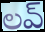
లవ్